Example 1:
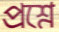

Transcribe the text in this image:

প্রশ্নে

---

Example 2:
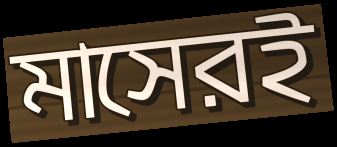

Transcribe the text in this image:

মাসেরই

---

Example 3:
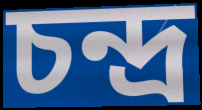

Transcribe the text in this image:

চন্দ্র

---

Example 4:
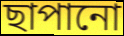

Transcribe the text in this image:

ছাপানো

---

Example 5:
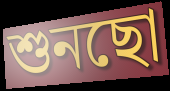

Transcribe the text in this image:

শুনছো